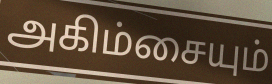
அகிம்சையும்